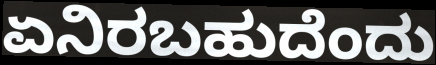
ಏನಿರಬಹುದೆಂದು